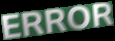
ERROR